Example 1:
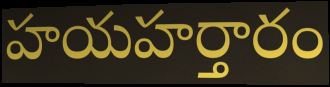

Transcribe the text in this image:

హయహర్తారం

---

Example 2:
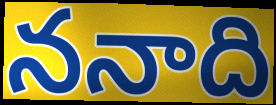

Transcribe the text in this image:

ననాది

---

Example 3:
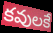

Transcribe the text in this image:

కవులకే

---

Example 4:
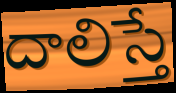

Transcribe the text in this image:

దాలిస్తే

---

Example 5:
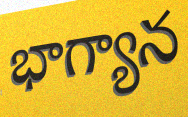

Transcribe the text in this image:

భాగ్యాన